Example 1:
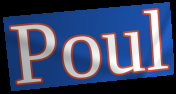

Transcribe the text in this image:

Poul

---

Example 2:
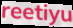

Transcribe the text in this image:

reetiyu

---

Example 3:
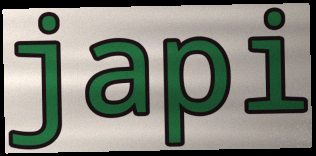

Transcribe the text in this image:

japi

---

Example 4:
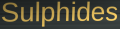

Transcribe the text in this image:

Sulphides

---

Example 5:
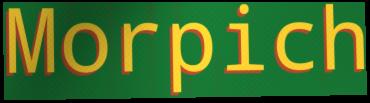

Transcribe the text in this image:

Morpich